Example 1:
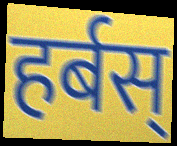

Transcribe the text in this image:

हर्बस्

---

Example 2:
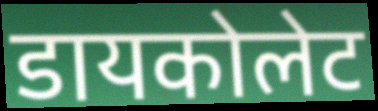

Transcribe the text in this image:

डायकोलेट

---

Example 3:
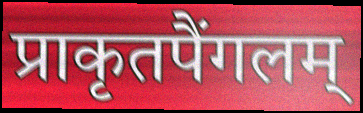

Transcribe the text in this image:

प्राकृतपैंगलम्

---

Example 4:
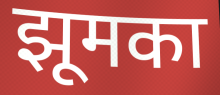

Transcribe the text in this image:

झूमका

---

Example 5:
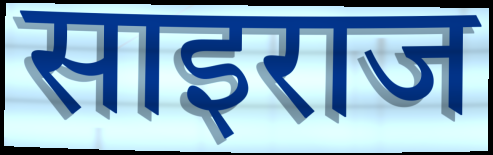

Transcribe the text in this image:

साइराज